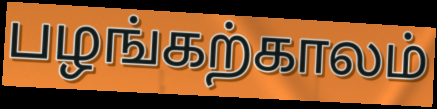
பழங்கற்காலம்